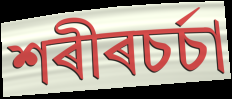
শৰীৰচৰ্চা